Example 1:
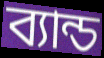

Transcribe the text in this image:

ব্যান্ড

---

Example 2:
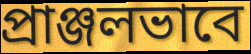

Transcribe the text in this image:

প্রাঞ্জলভাবে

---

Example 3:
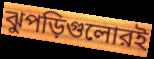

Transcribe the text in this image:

ঝুপড়িগুলোরই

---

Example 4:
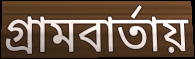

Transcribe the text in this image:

গ্রামবার্তায়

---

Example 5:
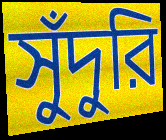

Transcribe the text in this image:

সুঁদুরি